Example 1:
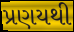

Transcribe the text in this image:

પ્રણયથી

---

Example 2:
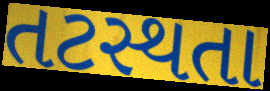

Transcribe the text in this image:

તટસ્થતા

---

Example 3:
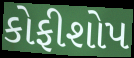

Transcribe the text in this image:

કોફીશોપ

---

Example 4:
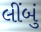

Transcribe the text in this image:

લીંબું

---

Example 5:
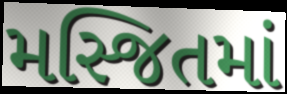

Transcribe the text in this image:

મસ્જિતમાં